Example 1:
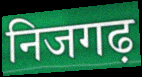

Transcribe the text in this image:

निजगढ़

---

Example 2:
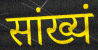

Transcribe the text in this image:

सांख्यं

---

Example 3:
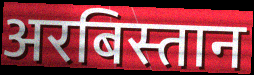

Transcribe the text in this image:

अरबिस्तान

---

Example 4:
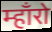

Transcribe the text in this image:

म्हाँरो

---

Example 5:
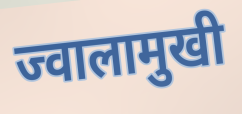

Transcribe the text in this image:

ज्वालामुखी